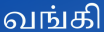
வங்கி